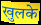
खुलके